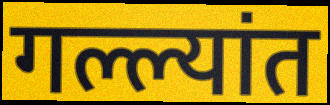
गल्ल्यांत